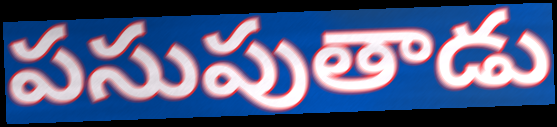
పసుపుతాడు